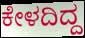
ಕೇಳದಿದ್ದ